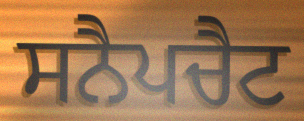
ਸਨੈਪਚੈਟ